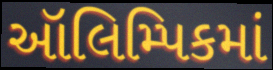
ઑલિમ્પિકમાં